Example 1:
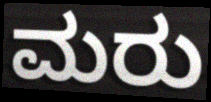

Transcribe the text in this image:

ಮರು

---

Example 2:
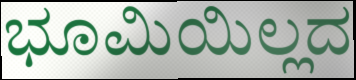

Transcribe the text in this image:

ಭೂಮಿಯಿಲ್ಲದ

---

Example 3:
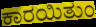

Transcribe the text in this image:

ಕಾರಯಿತುಂ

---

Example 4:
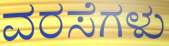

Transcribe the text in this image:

ವರಸೆಗಳು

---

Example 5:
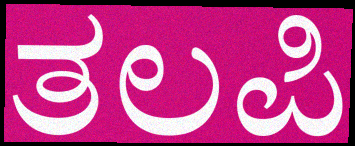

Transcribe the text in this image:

ತಲಪಿ